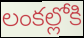
లంకల్లోకి